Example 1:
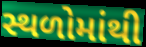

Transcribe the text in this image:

સ્થળોમાંથી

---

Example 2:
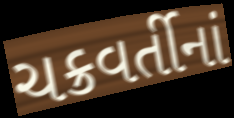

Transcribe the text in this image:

ચક્રવર્તીનાં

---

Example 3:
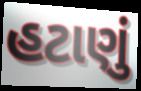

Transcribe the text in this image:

હટાણું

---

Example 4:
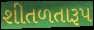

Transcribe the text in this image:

શીતળતારૂપ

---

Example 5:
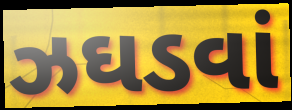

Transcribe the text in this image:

ઝઘડવાં